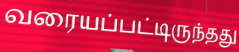
வரையப்பட்டிருந்தது